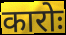
कारोः